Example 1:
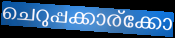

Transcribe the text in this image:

ചെറുപ്പക്കാര്ക്കോ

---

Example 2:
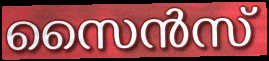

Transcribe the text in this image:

സൈൻസ്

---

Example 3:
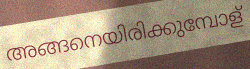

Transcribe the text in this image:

അങ്ങനെയിരിക്കുമ്പോള്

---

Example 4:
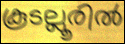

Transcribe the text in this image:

കൂടല്ലൂരിൽ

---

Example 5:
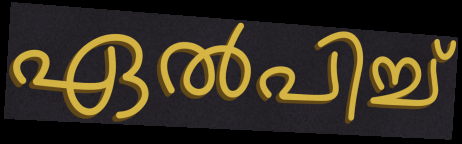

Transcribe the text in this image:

ഏൽപിച്ച്